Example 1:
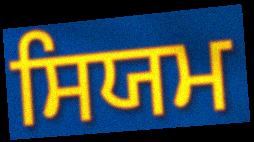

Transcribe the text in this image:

ਸਿਯਮ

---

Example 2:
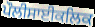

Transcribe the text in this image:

ਪੌਲੀਸਾਈਕਲਿਕ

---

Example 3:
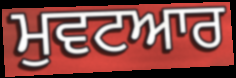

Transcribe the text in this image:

ਮੁਵਟਆਰ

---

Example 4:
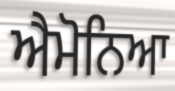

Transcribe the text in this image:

ਐਮੋਨਿਆ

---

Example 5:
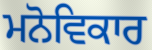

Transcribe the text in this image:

ਮਨੋਵਿਕਾਰ